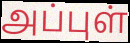
அப்புள்